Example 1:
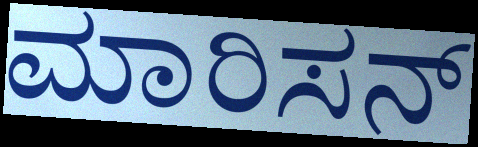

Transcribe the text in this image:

ಮಾರಿಸನ್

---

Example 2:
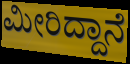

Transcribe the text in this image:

ಮೀರಿದ್ದಾನೆ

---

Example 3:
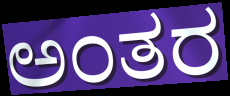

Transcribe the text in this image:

ಅಂತರ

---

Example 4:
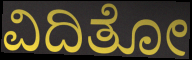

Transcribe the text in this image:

ವಿದಿತೋ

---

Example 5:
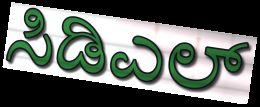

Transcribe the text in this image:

ಸಿಡಿಎಲ್